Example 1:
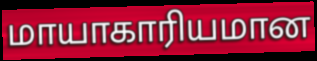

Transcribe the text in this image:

மாயாகாரியமான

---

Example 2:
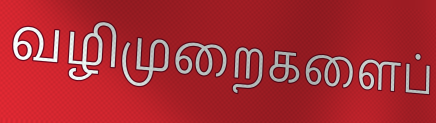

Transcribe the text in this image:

வழிமுறைகளைப்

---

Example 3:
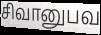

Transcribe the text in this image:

சிவானுபவ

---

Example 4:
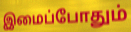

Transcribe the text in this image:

இமைப்போதும்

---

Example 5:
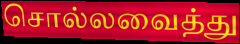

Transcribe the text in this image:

சொல்லவைத்து